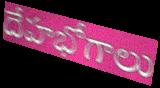
దేహభోగాలు